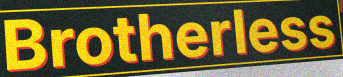
Brotherless